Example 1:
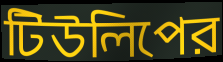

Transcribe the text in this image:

টিউলিপের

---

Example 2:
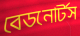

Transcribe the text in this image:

বেডনোর্টস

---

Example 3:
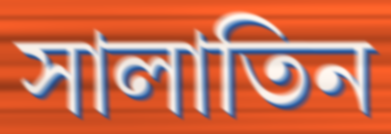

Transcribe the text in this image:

সালাতিন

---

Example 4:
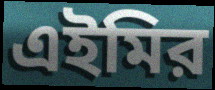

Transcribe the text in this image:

এইমির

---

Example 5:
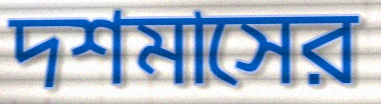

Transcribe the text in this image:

দশমাসের